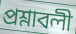
প্রশ্নাবলী